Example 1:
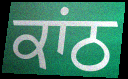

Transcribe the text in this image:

ਕਾਂਠ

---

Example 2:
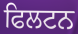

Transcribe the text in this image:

ਫਿਲਟਨ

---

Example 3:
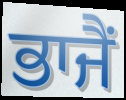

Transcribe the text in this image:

ਭਾਜੈਂ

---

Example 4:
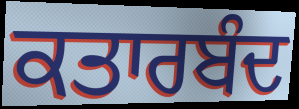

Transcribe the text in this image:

ਕਤਾਰਬੰਦ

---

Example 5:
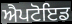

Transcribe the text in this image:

ਐਪਟੋਇਡ